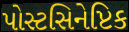
પોસ્ટસિનેપ્ટિક